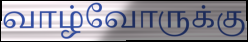
வாழ்வோருக்கு